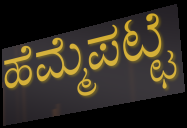
ಹೆಮ್ಮೆಪಟ್ಟೆ